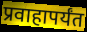
प्रवाहापर्यंत